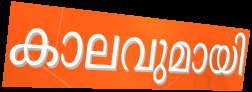
കാലവുമായി